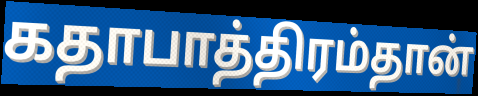
கதாபாத்திரம்தான்